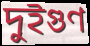
দুইগুণ